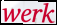
werk